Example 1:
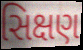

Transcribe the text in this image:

સિક્ષણ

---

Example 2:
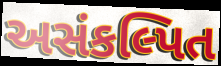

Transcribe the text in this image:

અસંકલ્પિત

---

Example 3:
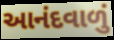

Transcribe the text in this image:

આનંદવાળું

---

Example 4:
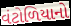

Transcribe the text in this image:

વંટોળિયાનો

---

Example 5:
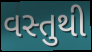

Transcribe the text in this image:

વસ્તુથી